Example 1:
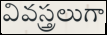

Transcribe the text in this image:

వివస్త్రలుగా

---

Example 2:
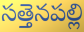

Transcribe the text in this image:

సత్తెనపల్లి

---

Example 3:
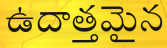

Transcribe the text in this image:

ఉదాత్తమైన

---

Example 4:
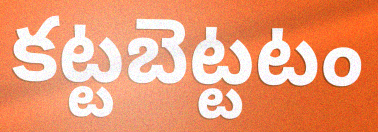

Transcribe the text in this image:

కట్టబెట్టటం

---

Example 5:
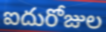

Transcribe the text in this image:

ఐదురోజుల